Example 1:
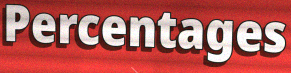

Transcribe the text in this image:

Percentages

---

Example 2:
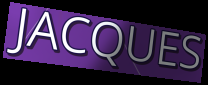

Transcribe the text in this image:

JACQUES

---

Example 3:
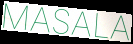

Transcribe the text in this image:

MASALA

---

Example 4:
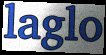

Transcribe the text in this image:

laglo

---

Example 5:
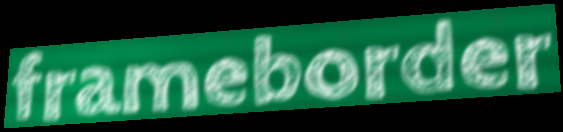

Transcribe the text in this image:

frameborder